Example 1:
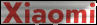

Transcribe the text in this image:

Xiaomi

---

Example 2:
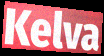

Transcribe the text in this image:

Kelva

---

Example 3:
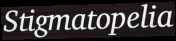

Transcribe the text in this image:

Stigmatopelia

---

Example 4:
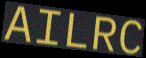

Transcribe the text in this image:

AILRC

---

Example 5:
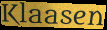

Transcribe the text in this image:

Klaasen